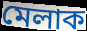
মেলাক